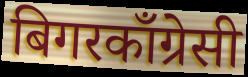
बिगरकाँग्रेसी